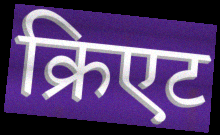
क्रिएट